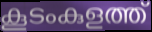
കൂടംകുളത്ത്